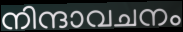
നിന്ദാവചനം